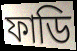
ফাডি